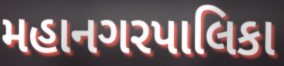
મહાનગરપાલિકા